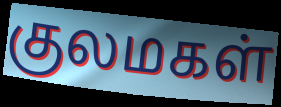
குலமகள்